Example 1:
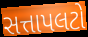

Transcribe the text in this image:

સત્તાપલટો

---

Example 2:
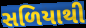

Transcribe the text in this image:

સળિયાથી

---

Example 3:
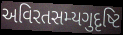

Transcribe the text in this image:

અવિરતસમ્યગુદૃષ્ટિ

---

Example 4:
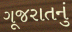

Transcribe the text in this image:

ગૂજરાતનું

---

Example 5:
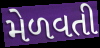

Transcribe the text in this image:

મેળવતી